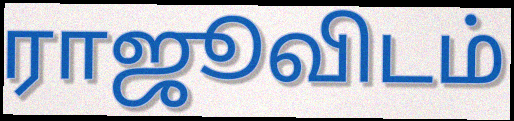
ராஜூவிடம்